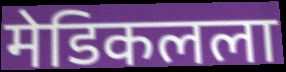
मेडिकलला